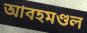
আবহমণ্ডল